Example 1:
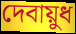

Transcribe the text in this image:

দেবায়ুধ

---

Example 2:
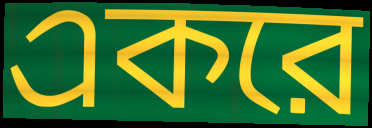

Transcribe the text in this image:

একরে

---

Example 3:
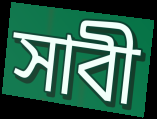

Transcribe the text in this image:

সাবী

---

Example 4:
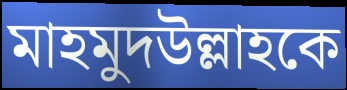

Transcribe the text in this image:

মাহমুদউল্লাহকে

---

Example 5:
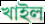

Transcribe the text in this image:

খাইল